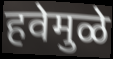
हवेमुळे